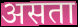
असता